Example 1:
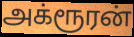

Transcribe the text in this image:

அக்ரூரன்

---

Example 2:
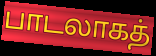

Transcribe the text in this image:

பாடலாகத்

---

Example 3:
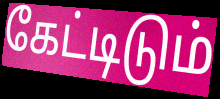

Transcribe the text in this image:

கேட்டிடும்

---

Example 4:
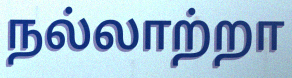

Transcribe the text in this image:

நல்லாற்றா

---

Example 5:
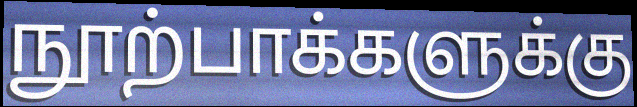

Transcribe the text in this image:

நூற்பாக்களுக்கு